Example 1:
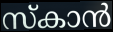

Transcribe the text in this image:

സ്കാൻ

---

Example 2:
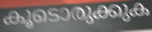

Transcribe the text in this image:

കൂടൊരുക്കുക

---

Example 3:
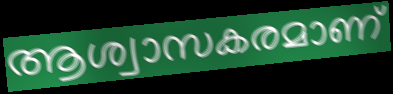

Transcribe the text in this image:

ആശ്വാസകരമാണ്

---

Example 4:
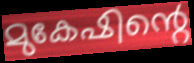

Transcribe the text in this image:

മുകേഷിന്റെ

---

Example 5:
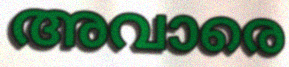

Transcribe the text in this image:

അവാരെ